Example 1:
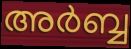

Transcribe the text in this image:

അർബ്ബ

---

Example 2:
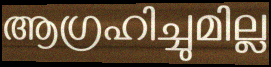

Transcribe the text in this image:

ആഗ്രഹിച്ചുമില്ല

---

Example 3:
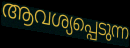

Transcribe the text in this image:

ആവശ്യപ്പെടുന്ന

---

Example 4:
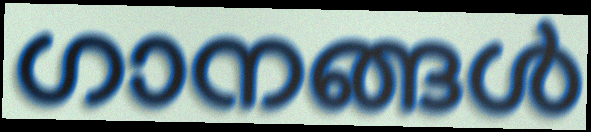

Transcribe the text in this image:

ഗാനങ്ങൾ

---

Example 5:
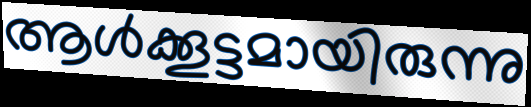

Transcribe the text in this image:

ആൾക്കൂട്ടമായിരുന്നു